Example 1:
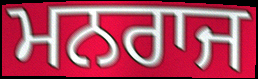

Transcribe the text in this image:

ਮਨਰਾਜ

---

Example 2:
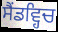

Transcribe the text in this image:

ਸੈਂਡਵ੍ਹਿਚ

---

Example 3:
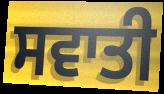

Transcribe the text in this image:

ਸਵਾਤੀ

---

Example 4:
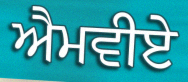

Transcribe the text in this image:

ਐਮਵੀਏ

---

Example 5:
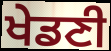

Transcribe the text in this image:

ਖੇਡਣੀ